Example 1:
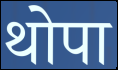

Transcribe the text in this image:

थोपा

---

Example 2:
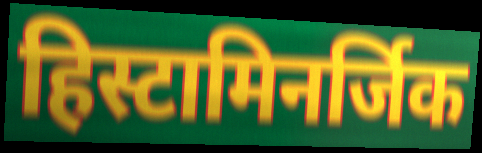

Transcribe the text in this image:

हिस्टामिनर्जिक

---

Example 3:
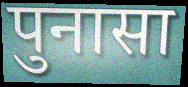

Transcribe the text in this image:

पुनासा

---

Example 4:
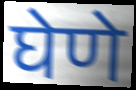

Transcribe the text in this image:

घेणे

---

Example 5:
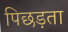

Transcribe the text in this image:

पिछड़ता